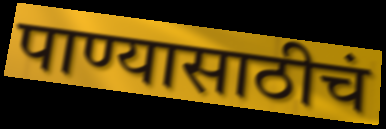
पाण्यासाठीचं